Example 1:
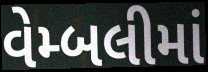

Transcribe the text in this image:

વેમ્બલીમાં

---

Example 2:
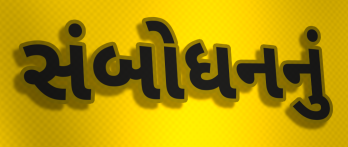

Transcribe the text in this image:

સંબોધનનું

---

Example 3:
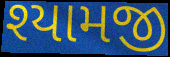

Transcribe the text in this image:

શ્યામજી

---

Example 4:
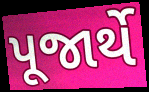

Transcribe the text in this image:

પૂજાર્થે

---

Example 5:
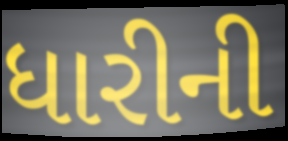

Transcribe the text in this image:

ધારીની